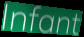
Infant